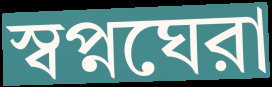
স্বপ্নঘেরা